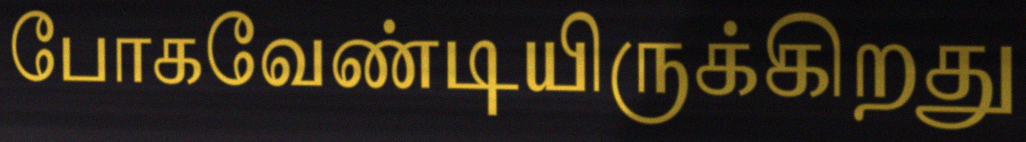
போகவேண்டியிருக்கிறது